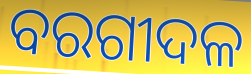
ବରଗୀଦଳ